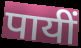
पायीं